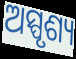
ଅସ୍ପୃଶ୍ୟ